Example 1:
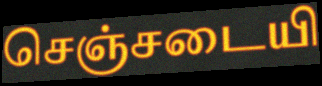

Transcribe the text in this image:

செஞ்சடையி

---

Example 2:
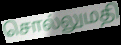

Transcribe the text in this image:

சொல்லுமதி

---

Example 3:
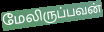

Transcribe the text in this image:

மேலிருப்பவன்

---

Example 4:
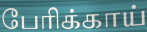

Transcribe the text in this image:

பேரிக்காய்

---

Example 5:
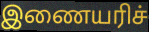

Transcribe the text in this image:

இணையரிச்